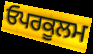
ਓਪਰਕੂਲਮ